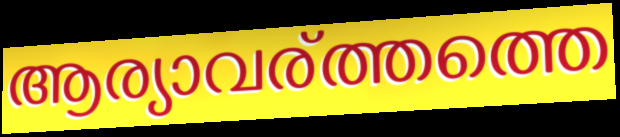
ആര്യാവര്ത്തത്തെ